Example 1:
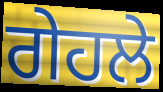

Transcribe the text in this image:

ਗੇਹਲੇ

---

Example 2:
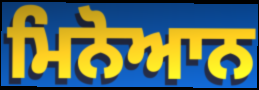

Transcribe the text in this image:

ਮਿਨੋਆਨ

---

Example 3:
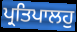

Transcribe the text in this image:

ਪ੍ਰਤਿਪਾਲਹੁ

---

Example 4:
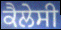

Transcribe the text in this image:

ਕੈਲੇਸੀ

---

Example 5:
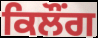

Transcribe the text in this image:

ਕਿਲੌਂਗ